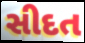
સીદત